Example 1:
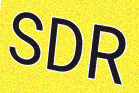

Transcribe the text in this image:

SDR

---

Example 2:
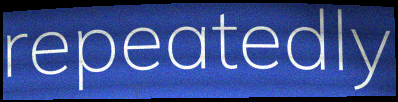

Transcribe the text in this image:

repeatedly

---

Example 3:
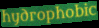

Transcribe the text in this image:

hydrophobic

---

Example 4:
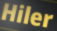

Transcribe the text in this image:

Hiler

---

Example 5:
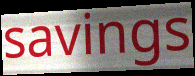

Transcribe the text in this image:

savings